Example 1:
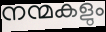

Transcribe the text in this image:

നന്മകളും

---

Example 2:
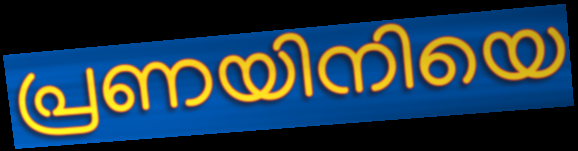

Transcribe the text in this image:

പ്രണയിനിയെ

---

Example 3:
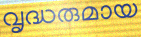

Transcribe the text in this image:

വൃദ്ധരുമായ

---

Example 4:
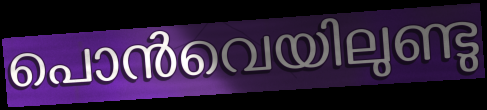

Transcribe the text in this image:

പൊൻവെയിലുണ്ടു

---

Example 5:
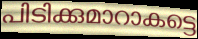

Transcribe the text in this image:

പിടിക്കുമാറാകട്ടെ